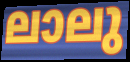
ലാലു